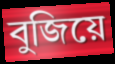
বুজিয়ে